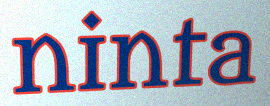
ninta